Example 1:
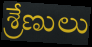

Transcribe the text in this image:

శ్రేణులు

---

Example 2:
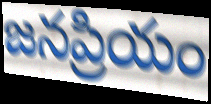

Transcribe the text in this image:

జనప్రియం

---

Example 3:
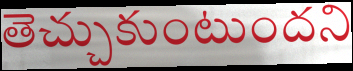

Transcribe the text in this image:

తెచ్చుకుంటుందని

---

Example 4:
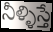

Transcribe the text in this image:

నీళ్ళిస్తే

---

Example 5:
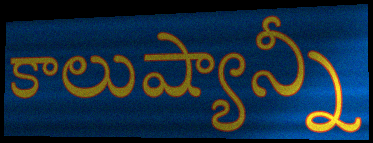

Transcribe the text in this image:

కాలుష్యాన్నీ